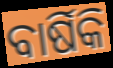
ବାର୍ଷିକି